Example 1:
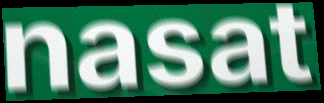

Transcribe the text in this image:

nasat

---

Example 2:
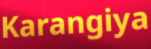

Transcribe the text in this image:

Karangiya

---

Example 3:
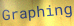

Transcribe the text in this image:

Graphing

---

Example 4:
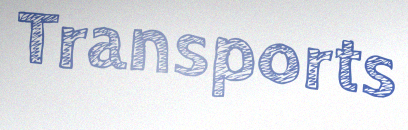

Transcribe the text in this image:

Transports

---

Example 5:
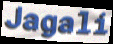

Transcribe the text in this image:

Jagali